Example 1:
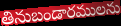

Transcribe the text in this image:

తినుబండారములను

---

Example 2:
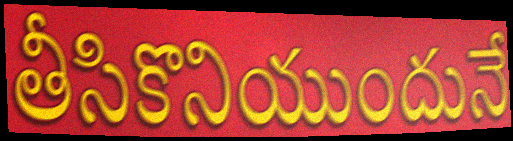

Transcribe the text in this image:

తీసికొనియుందునే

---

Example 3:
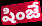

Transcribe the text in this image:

షింజే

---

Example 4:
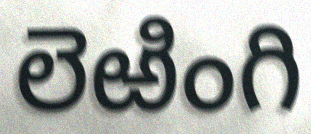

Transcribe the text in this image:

లెఱింగి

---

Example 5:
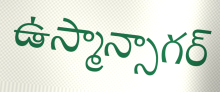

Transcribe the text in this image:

ఉస్మాన్సాగర్